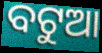
ବଟୁଆ